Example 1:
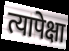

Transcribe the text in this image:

त्यापेक्षा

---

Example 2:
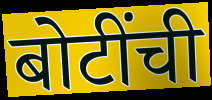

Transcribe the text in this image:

बोटींची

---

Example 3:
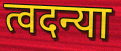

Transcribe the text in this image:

त्वदन्या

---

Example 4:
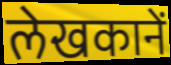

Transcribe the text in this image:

लेखकानें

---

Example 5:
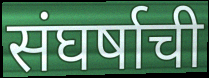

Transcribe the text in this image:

संघर्षाची